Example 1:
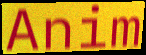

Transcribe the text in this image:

Anim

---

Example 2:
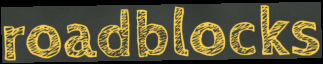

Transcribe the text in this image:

roadblocks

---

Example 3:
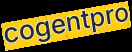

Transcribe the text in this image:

cogentpro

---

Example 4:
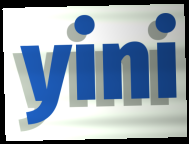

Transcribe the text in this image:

yini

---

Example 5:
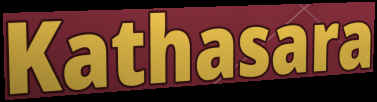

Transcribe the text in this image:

Kathasara